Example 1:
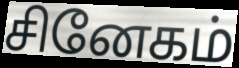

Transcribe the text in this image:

சினேகம்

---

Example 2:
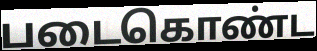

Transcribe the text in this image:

படைகொண்ட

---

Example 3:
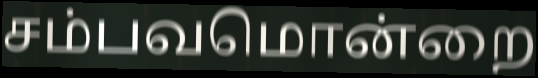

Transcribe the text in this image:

சம்பவமொன்றை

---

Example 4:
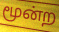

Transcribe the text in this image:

மூன்ற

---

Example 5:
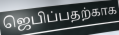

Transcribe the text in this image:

ஜெபிப்பதற்காக